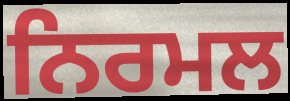
ਨਿਰਮਲ